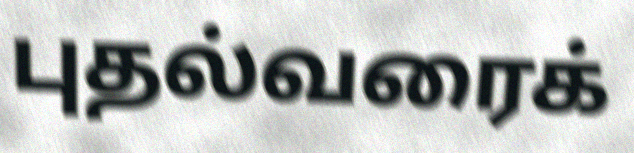
புதல்வரைக்